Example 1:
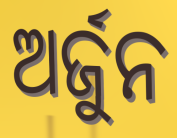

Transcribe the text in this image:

ଅର୍ଜୁନ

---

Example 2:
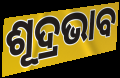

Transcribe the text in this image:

ଶୂଦ୍ରଭାବ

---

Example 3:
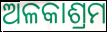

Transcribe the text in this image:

ଅଳକାଶ୍ରମ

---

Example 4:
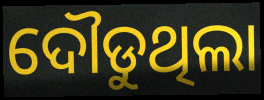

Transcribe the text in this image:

ଦୌଡୁଥିଲା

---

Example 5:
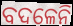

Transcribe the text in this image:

ବଦଳେନି